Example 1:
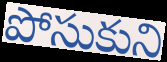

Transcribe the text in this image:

పోసుకుని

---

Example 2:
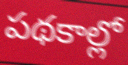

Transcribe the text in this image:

పథకాల్లో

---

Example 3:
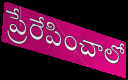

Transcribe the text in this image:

ప్రేరేపించాలో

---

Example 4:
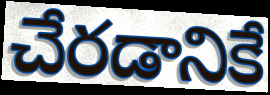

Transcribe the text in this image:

చేరడానికే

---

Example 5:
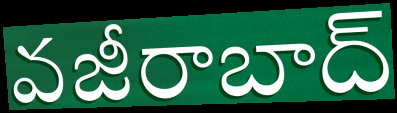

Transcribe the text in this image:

వజీరాబాద్